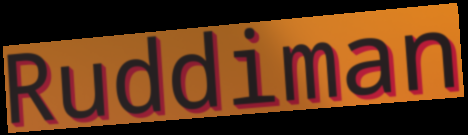
Ruddiman